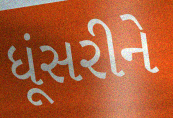
ધૂંસરીને